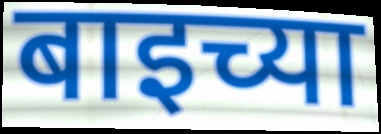
बाइच्या